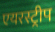
एयरस्ट्रीप